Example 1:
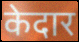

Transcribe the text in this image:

केदार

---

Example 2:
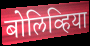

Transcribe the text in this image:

बोलिव्हिया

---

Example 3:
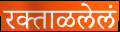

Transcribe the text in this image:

रक्ताळलेलं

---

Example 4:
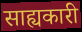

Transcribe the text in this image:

साह्यकारी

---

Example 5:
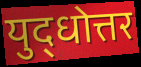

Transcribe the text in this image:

युद्धोत्तर